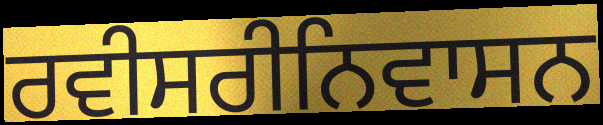
ਰਵੀਸਰੀਨਿਵਾਸਨ